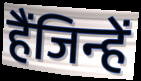
हैंजिन्हें